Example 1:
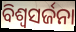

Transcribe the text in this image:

ବିଶ୍ଵସର୍ଜନା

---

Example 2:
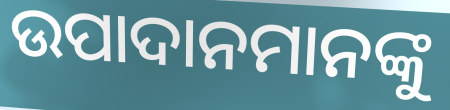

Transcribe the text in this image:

ଉପାଦାନମାନଙ୍କୁ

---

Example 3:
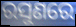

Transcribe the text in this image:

ରସୁଣରେ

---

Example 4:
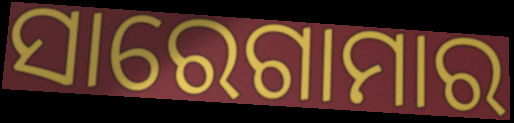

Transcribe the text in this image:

ସାରେଗାମାର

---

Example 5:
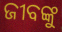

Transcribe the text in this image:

ଜୀବଙ୍କୁ